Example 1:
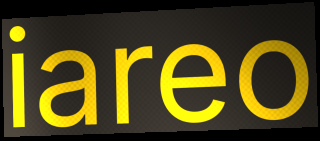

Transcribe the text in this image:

iareo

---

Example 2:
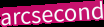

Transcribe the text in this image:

arcsecond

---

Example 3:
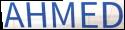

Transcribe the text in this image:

AHMED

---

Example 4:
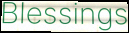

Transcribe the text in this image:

Blessings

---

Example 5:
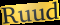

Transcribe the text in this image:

Ruud